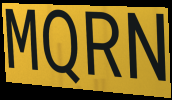
MQRN